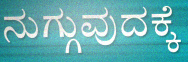
ನುಗ್ಗುವುದಕ್ಕೆ